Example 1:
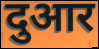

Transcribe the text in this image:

दुआर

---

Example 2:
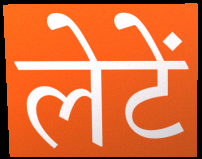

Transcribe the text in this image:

लेटें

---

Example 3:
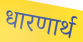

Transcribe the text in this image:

धारणार्थ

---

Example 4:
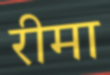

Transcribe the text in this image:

रीमा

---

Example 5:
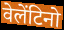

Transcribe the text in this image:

वेलेंटिनो